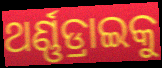
ଥର୍ଣ୍ଣଡ୍ରାଇକୁ